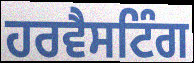
ਹਰਵੈਸਟਿੰਗ